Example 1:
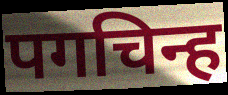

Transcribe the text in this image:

पगचिन्ह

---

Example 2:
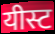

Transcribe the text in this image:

यीस्ट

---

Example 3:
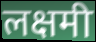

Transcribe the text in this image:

लक्षमी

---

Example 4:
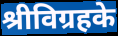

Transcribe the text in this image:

श्रीविग्रहके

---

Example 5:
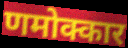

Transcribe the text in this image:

णमोक्कार